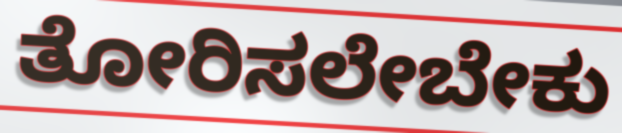
ತೋರಿಸಲೇಬೇಕು